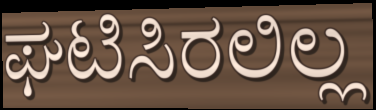
ಘಟಿಸಿರಲಿಲ್ಲ